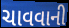
ચાવવાની